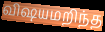
விஷயமறிந்த